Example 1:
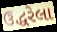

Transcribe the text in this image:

ઉદ્ધરેલા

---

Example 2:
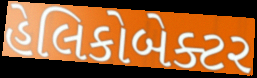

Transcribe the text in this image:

હેલિકોબેક્ટર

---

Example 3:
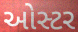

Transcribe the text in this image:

ઓસ્ટર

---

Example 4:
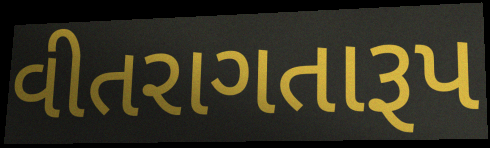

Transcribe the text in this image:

વીતરાગતારૂપ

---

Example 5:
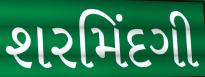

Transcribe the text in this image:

શરમિંદગી